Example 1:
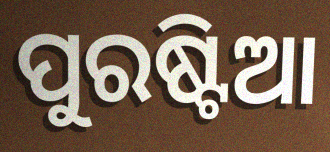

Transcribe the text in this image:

ପୁରଷ୍ଟିଆ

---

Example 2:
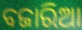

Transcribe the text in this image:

ବଜାରିଆ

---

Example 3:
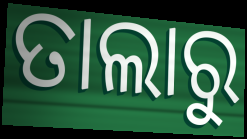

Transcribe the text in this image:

ତାଲାରୁ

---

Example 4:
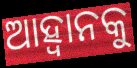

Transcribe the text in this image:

ଆହ୍ବାନକୁ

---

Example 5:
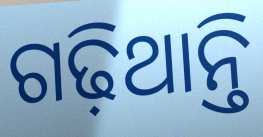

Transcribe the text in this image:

ଗଢ଼ିଥାନ୍ତି